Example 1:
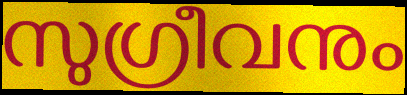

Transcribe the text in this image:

സുഗ്രീവനും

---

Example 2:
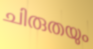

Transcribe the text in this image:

ചിരുതയും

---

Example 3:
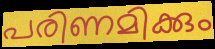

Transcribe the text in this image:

പരിണമിക്കും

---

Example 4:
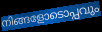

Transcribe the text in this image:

നിങ്ങളോടൊപ്പവും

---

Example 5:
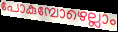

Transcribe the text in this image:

പോകുമ്പോഴെല്ലാം